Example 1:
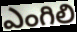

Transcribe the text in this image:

ఎంగిలి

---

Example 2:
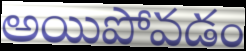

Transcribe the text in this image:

అయిపోవడం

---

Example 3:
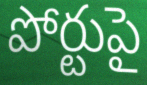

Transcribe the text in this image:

పోర్టుపై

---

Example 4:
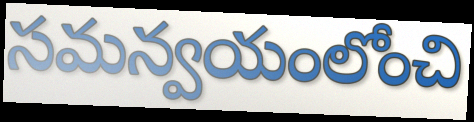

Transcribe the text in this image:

సమన్వయంలోంచి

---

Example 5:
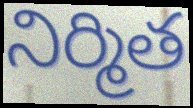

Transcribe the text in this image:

నిర్మిత